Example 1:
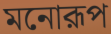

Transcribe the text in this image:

মনোরূপ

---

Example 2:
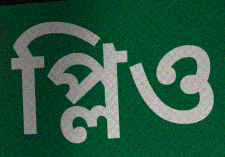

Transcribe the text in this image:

প্লিও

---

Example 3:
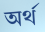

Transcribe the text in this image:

অর্থ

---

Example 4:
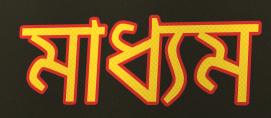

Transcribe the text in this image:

মাধ্যম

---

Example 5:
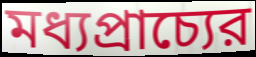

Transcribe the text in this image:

মধ্যপ্রাচ্যের